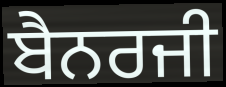
ਬੈਨਰਜੀ